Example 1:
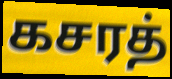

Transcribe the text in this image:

கசரத்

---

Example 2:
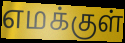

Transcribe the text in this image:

எமக்குள்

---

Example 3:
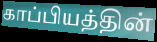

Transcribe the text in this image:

காப்பியத்தின்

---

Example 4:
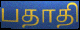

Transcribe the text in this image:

பதாதி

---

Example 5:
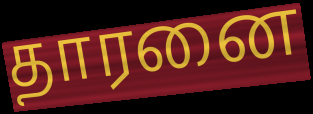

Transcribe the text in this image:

தாரனை